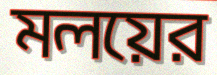
মলয়ের